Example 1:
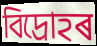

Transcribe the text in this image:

বিদ্ৰোহৰ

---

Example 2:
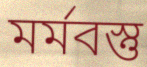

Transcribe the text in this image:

মৰ্মবস্তু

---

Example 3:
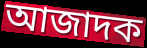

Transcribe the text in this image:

আজাদক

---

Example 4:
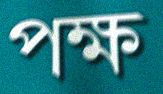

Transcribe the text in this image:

পক্ষ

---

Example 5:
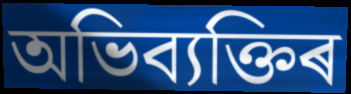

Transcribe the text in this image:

অভিব্যক্তিৰ